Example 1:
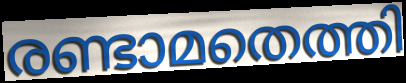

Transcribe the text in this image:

രണ്ടാമതെത്തി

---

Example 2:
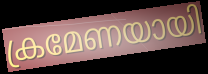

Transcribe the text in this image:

ക്രമേണയായി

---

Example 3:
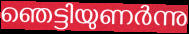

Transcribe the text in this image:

ഞെട്ടിയുണർന്നു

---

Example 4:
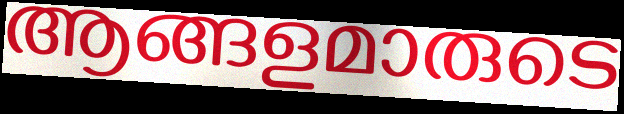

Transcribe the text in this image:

ആങ്ങളമാരുടെ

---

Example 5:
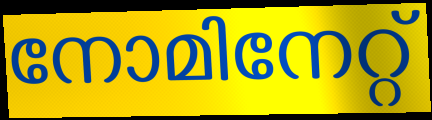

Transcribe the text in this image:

നോമിനേറ്റ്